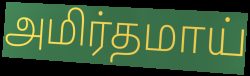
அமிர்தமாய்